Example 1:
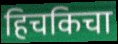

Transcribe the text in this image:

हिचकिचा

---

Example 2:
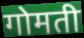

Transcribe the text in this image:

गोमती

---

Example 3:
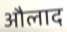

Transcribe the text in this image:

औलाद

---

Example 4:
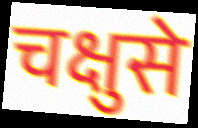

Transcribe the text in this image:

चक्षुसे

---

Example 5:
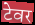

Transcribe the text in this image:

टेवर